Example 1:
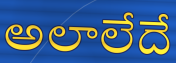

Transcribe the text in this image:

అలాలేదే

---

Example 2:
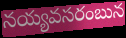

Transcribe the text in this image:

నయ్యవసరంబున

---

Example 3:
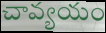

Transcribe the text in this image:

చావ్యయం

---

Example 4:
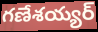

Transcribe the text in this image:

గణేశయ్యర్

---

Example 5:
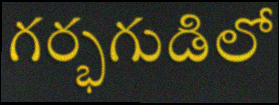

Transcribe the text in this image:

గర్భగుడిలో